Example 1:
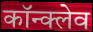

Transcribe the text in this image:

कॉन्क्लेव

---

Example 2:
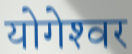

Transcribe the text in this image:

योगेश्‍वर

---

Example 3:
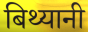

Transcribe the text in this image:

बिथ्यानी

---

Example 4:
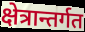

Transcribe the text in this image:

क्षेत्रान्तर्गत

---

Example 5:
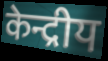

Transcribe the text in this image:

केन्‍द्रीय